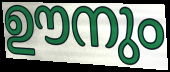
ഊനും